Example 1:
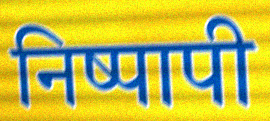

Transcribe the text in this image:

निष्पापी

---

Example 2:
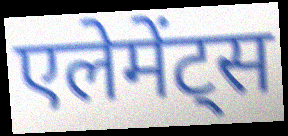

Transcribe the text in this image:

एलेमेंट्स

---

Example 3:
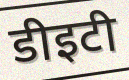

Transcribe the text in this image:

डीइटी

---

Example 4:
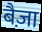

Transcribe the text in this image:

बैज़ा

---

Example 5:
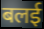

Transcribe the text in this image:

बलई